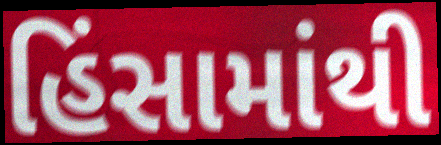
હિંસામાંથી